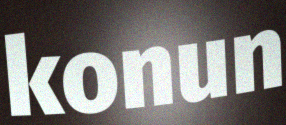
konun